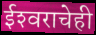
ईश्वराचेही